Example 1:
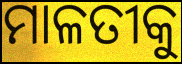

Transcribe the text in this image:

ମାଳତୀକୁ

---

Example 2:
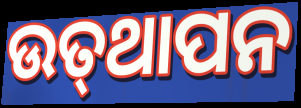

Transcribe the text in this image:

ଉତ୍‍ଥାପନ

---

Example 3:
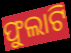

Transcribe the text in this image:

ଫୁଲାଟି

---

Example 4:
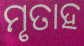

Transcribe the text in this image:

ମୃତାହ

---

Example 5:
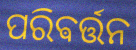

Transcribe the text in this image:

ପରିଵର୍ତ୍ତନ